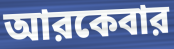
আরকেবার